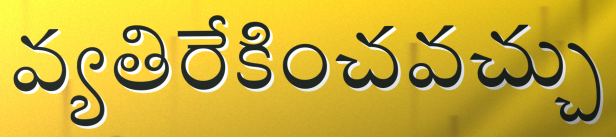
వ్యతిరేకించవచ్చు